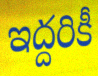
ఇద్దరికీ